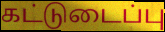
கட்டுடைப்பு